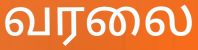
வரலை